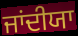
ਜਾਂਦੀਯਾ